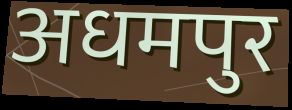
अधमपुर